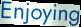
Enjoying